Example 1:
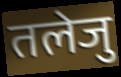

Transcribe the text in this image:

तलेजु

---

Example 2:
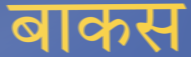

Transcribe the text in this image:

बाकस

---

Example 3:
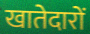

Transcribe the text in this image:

खातेदारों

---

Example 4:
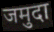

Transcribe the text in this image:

जमुदा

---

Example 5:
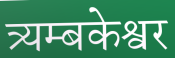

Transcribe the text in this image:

त्र्यम्बकेश्वर